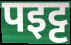
पइट्ट